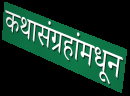
कथासंग्रहांमधून